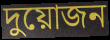
দুয়োজন